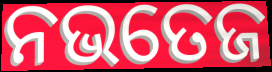
ନଭତେଜ